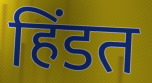
हिंडत